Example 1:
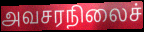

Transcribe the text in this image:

அவசரநிலைச்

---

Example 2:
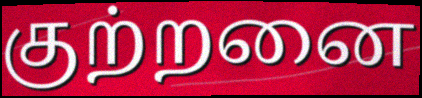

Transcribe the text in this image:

குற்றனை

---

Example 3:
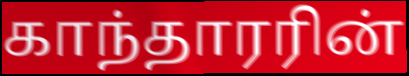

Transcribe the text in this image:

காந்தாரரின்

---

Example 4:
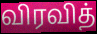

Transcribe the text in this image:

விரவித்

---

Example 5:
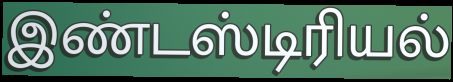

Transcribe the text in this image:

இண்டஸ்டிரியல்